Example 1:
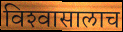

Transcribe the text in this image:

विश्वासालाच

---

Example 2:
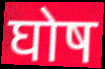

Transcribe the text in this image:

घोष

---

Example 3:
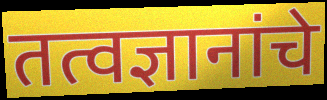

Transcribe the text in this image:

तत्वज्ञानांचे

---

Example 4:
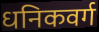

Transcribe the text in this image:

धनिकवर्ग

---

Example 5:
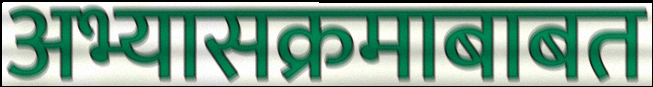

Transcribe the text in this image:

अभ्यासक्रमाबाबत